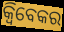
କ୍ୱିବେକର